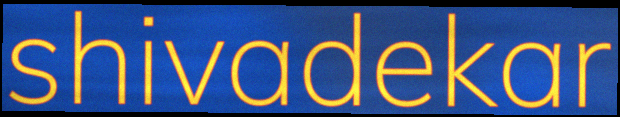
shivadekar